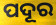
ପଦୂର